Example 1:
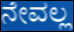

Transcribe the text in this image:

ನೇವಲ್ಲ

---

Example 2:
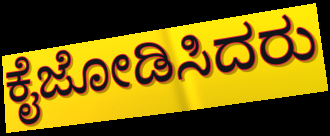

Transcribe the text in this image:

ಕೈಜೋಡಿಸಿದರು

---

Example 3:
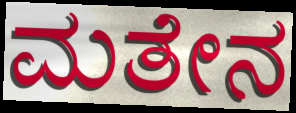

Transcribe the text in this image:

ಮತೇನ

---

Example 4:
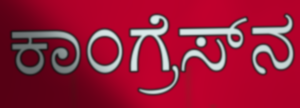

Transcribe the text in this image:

ಕಾಂಗ್ರೆಸ್‍ನ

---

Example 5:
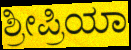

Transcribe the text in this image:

ಶ್ರೀಪ್ರಿಯಾ